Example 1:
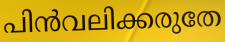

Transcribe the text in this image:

പിൻവലിക്കരുതേ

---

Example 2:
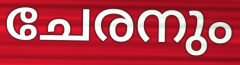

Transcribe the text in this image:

ചേരനും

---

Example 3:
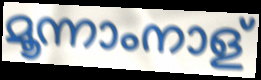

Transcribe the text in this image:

മൂന്നാംനാള്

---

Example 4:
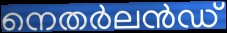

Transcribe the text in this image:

നെതർലൻഡ്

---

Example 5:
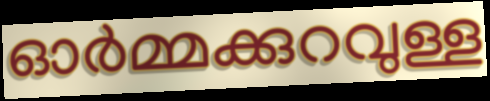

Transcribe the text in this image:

ഓർമ്മക്കുറവുള്ള